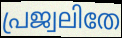
പ്രജ്വലിതേ